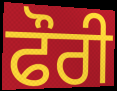
ਫੌਰੀ